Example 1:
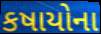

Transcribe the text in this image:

કષાયોના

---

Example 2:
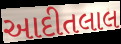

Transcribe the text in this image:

આદીતલાલ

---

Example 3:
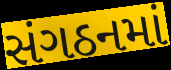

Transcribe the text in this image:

સંગઠનમાં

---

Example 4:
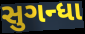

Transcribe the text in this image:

સુગન્ધા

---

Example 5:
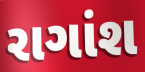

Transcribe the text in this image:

રાગાંશ